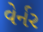
વેર્નર